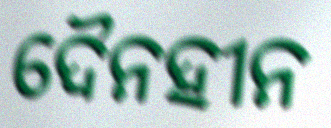
ଦୈନହୀନ